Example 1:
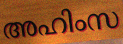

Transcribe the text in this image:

അഹിംസ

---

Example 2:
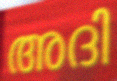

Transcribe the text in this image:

അദി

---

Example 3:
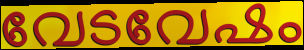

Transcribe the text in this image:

വേടവേഷം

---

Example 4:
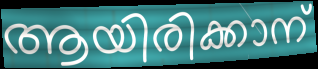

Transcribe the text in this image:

ആയിരിക്കാന്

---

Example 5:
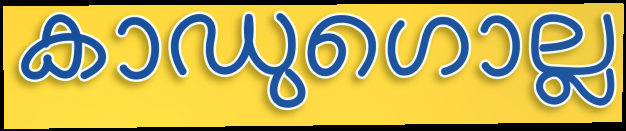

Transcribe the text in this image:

കാഡുഗൊല്ല